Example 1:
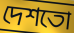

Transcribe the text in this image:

দেশতো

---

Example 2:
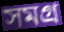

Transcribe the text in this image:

সমগ্ৰ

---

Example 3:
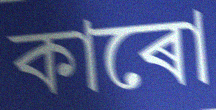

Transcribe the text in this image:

কাৰো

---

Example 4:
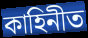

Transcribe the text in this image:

কাহিনীত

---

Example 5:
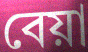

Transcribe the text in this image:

বেয়া